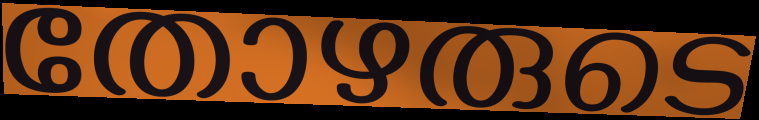
തോഴരുടെ